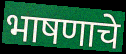
भाषणाचे